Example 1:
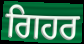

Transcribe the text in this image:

ਗਿਹਰ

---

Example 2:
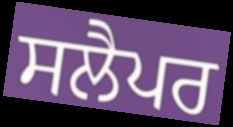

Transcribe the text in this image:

ਸਲੈਪਰ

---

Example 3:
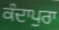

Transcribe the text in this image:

ਕੰਦਾਪੁਰਾ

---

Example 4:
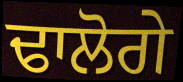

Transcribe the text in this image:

ਢਾਲੋਗੇ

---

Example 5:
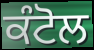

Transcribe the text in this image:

ਕੰਟੋਲ